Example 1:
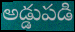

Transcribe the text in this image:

అడ్డుపడి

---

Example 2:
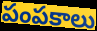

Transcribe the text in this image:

పంపకాలు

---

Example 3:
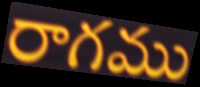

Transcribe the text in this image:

రాగము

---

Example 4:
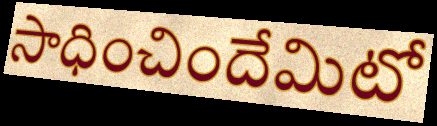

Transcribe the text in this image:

సాధించిందేమిటో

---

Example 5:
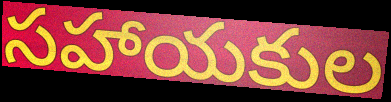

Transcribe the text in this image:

సహాయకుల